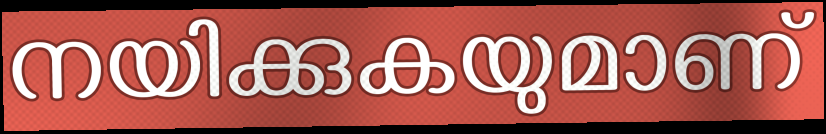
നയിക്കുകയുമാണ്